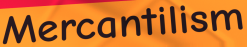
Mercantilism